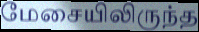
மேசையிலிருந்த